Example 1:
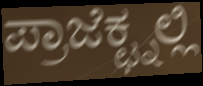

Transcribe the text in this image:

ಪ್ರಾಜೆಕ್ಟ್ನಲ್ಲಿ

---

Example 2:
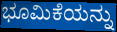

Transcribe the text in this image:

ಭೂಮಿಕೆಯನ್ನು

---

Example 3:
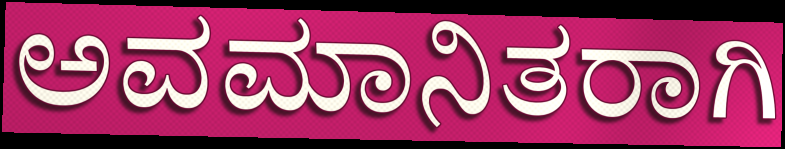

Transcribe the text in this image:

ಅವಮಾನಿತರಾಗಿ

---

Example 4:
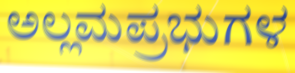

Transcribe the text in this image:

ಅಲ್ಲಮಪ್ರಭುಗಳ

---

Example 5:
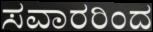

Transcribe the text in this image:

ಸವಾರರಿಂದ